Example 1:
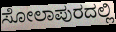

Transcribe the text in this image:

ಸೋಲಾಪುರದಲ್ಲಿ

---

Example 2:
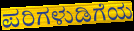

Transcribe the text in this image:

ಪರಿಗಳುಡಿಗೆಯ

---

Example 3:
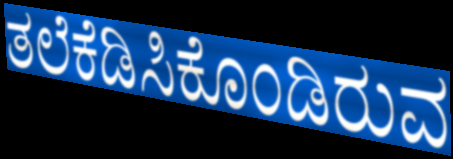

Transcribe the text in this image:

ತಲೆಕೆಡಿಸಿಕೊಂಡಿರುವ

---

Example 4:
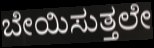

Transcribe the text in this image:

ಬೇಯಿಸುತ್ತಲೇ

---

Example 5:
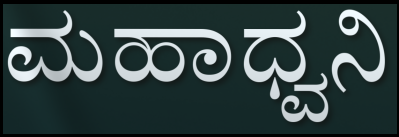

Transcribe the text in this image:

ಮಹಾಧ್ವನಿ